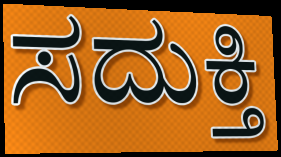
ಸದುಕ್ತಿ